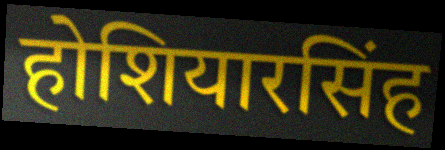
होशियारसिंह